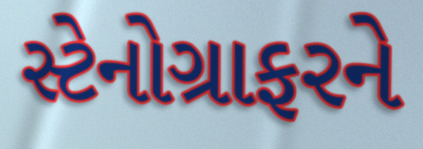
સ્ટેનોગ્રાફરને